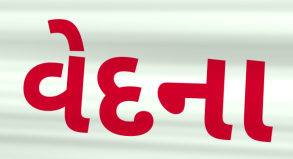
વેદના